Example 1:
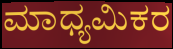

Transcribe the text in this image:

ಮಾಧ್ಯಮಿಕರ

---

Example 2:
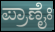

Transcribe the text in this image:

ಪ್ರಾಣೈಃ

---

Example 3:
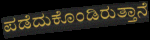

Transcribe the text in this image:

ಪಡೆದುಕೊಂಡಿರುತ್ತಾನೆ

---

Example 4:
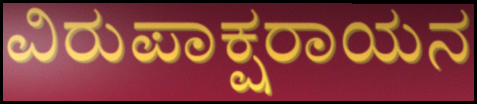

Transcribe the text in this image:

ವಿರುಪಾಕ್ಷರಾಯನ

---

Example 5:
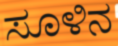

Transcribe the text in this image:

ಸೂಳಿನ